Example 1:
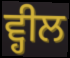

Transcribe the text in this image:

ਵ੍ਹੀਲ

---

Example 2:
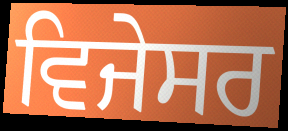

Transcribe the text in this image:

ਵਿਜੇਸਰ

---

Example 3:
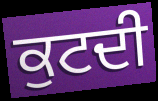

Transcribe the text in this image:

ਕੁਟਦੀ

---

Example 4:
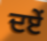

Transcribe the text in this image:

ਦਏਂ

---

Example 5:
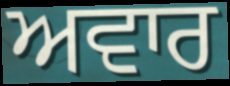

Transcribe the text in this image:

ਅਵਾਰ